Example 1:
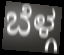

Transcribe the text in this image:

ಬೆಳ್ಗ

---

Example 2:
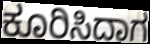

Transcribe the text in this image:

ಕೂರಿಸಿದಾಗ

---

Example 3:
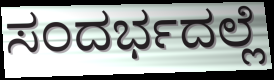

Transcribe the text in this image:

ಸಂದರ್ಭದಲ್ಲೆ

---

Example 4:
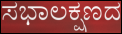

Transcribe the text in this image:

ಸಭಾಲಕ್ಷಣದ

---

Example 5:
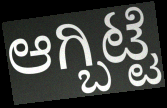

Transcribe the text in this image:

ಆಗ್ಬಿಟ್ಟೆ